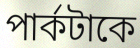
পার্কটাকে